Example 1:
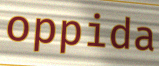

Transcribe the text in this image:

oppida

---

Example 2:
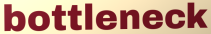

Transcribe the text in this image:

bottleneck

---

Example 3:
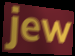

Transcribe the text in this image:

jew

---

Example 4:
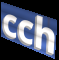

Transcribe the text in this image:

cch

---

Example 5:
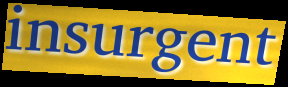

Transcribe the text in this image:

insurgent